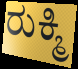
ರುಕ್ಮಿ